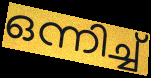
ഒന്നിച്ച്